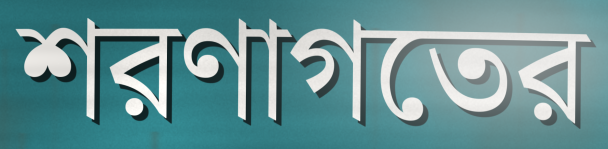
শরণাগতের